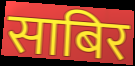
साबिर